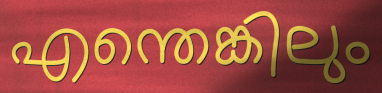
എന്തെങ്കിലും